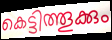
കെട്ടിത്തൂക്കും